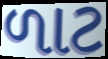
ળાટ